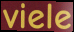
viele